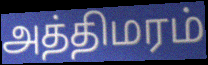
அத்திமரம்